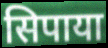
सिपाया